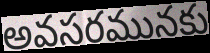
అవసరమునకు